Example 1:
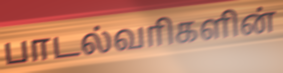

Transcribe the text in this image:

பாடல்வரிகளின்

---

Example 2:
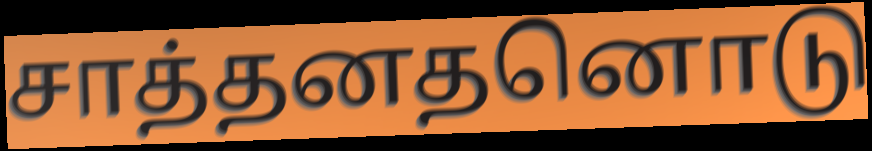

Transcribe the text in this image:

சாத்தனதனொடு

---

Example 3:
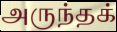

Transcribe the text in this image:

அருந்தக்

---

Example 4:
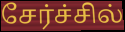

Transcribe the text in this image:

சேர்ச்சில்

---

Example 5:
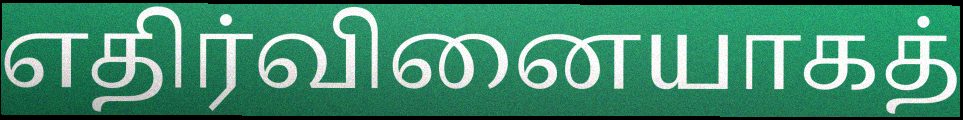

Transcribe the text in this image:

எதிர்வினையாகத்